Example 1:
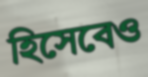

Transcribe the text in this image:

হিসেবেও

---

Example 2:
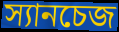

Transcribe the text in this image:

স্যানচেজ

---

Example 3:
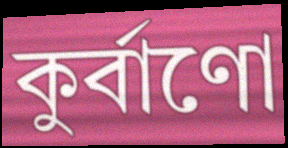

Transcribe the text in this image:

কুর্বাণো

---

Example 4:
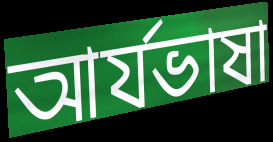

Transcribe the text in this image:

আর্যভাষা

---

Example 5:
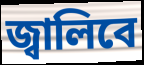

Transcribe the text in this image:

জ্বালিবে